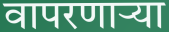
वापरणाऱ्या